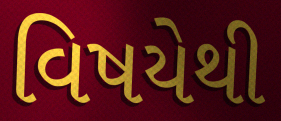
વિષયેથી